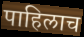
पाहिलाच